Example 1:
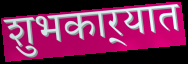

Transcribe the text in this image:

शुभकार्यात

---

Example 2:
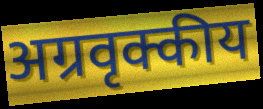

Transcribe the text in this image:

अग्रवृक्कीय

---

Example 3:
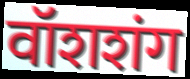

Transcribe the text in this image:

वॉशशंग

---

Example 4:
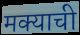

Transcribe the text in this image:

मक्याची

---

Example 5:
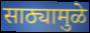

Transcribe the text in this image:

साठ्यामुळे